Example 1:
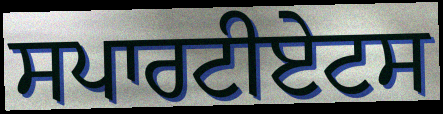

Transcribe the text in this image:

ਸਪਾਰਟੀਏਟਸ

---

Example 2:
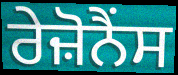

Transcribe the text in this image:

ਰੇਜ਼ੋਨੈਂਸ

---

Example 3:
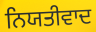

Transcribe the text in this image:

ਨਿਯਤੀਵਾਦ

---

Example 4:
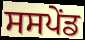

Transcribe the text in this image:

ਸਸਪੇੰਡ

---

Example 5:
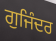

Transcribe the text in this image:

ਗੁਜਿੰਦਰ